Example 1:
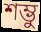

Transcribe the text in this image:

শম্ভু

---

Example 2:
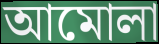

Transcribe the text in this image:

আমোলা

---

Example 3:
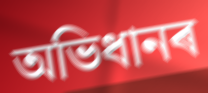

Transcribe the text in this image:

অভিধানৰ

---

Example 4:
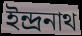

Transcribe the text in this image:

ইন্দ্ৰনাথ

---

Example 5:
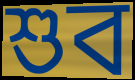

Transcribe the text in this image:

শুব